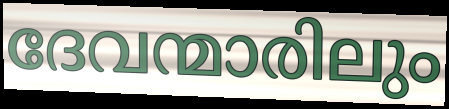
ദേവന്മാരിലും